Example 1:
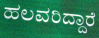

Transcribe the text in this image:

ಹಲವರಿದ್ದಾರೆ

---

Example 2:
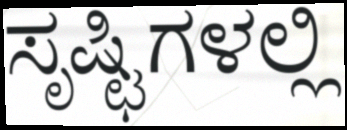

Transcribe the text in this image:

ಸೃಷ್ಟಿಗಳಲ್ಲಿ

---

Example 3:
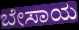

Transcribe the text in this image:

ಬೇಸಾಯ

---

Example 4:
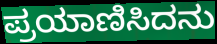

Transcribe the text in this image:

ಪ್ರಯಾಣಿಸಿದನು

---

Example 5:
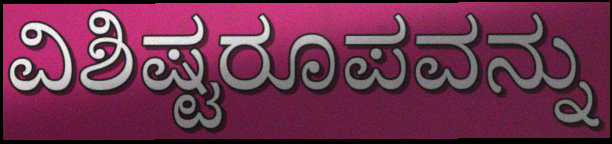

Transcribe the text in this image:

ವಿಶಿಷ್ಟರೂಪವನ್ನು